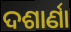
ଦଶାର୍ଣା